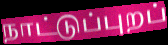
நாட்டுப்புறப்